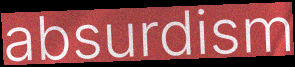
absurdism